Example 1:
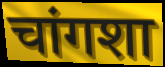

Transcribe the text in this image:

चांगशा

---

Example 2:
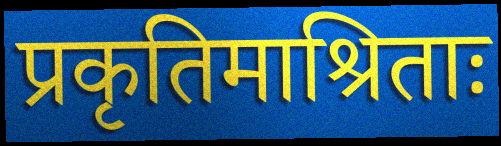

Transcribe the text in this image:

प्रकृतिमाश्रिताः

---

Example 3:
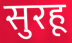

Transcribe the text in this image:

सुरहू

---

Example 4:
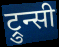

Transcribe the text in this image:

ट्रुन्सी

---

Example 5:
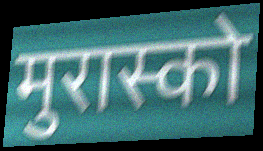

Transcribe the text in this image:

मुरास्को